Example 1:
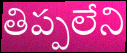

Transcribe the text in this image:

తిప్పలేని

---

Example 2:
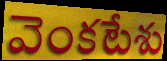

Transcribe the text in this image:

వెంకటేశు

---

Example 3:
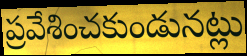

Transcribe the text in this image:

ప్రవేశించకుండునట్లు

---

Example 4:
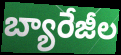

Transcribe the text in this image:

బ్యారేజీల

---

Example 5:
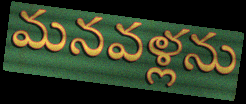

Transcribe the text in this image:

మనవళ్లను